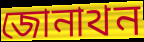
জোনাথন